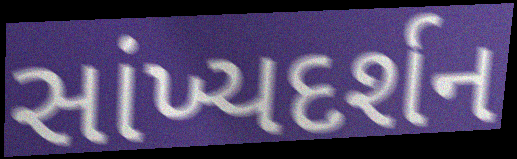
સાંખ્યદર્શન